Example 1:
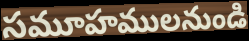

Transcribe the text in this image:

సమూహములనుండి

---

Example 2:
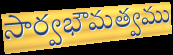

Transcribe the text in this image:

సార్వభౌమత్వము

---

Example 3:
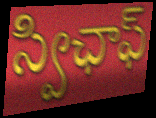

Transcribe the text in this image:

స్విఛాఫ్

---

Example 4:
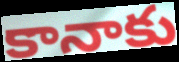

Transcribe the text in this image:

కానాకు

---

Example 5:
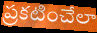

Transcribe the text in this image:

ప్రకటించేలా